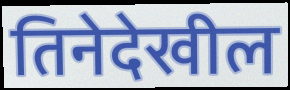
तिनेदेखील